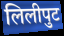
लिलीपुट